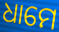
ଧାମେ